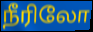
நீரிலோ